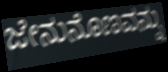
ಜೇನುನೊಣವನ್ನು